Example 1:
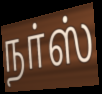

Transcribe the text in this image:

நர்ஸ்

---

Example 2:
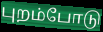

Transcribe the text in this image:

புறம்போடு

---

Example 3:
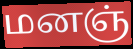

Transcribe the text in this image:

மனஞ்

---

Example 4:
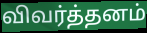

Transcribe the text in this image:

விவர்த்தனம்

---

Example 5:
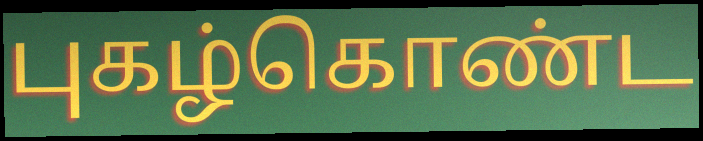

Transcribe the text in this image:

புகழ்கொண்ட